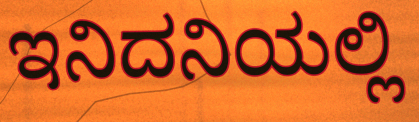
ಇನಿದನಿಯಲ್ಲಿ